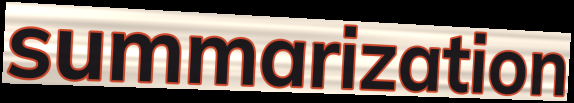
summarization